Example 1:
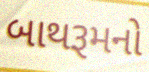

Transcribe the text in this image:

બાથરૂમનો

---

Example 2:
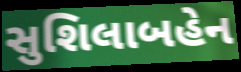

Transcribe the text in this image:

સુશિલાબહેન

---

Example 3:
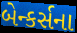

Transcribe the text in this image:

બેન્કર્સના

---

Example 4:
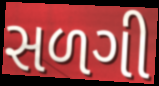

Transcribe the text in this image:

સળગી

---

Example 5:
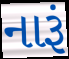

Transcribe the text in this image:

નારૂં